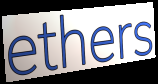
ethers